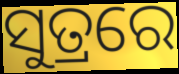
ସୁତ୍ରରେ